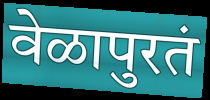
वेळापुरतं